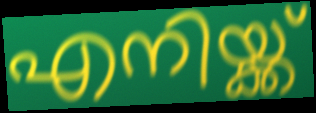
എനിയ്ക്ക്